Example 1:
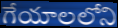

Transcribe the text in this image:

గేయాలలోని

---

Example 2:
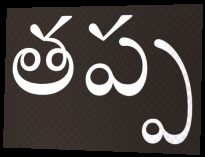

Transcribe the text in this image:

తప్ప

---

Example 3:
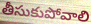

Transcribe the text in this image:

తీసుకుపోవాలి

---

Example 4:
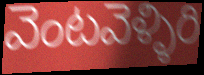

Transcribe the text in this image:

వెంటవెళ్ళిరి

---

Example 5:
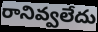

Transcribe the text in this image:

రానివ్వలేదు